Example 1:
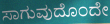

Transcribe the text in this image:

ಸಾಗುವುದೊಂದೇ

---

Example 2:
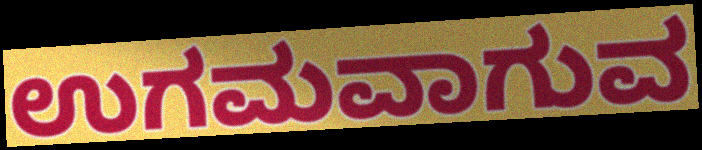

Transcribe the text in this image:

ಉಗಮವಾಗುವ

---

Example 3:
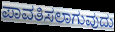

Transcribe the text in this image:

ಪಾವತಿಸಲಾಗುವುದು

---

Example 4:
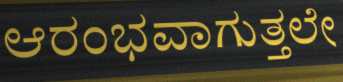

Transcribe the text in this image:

ಆರಂಭವಾಗುತ್ತಲೇ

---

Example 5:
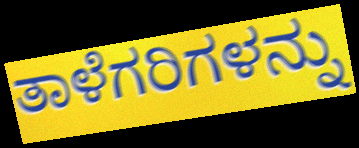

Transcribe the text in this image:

ತಾಳೆಗರಿಗಳನ್ನು